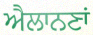
ਐਲਾਨਣਾਂ